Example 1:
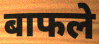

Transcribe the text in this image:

बाफले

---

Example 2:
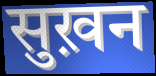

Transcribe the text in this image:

सुख़न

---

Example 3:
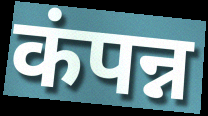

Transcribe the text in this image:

कंपन्न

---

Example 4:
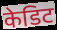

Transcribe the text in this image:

केडिट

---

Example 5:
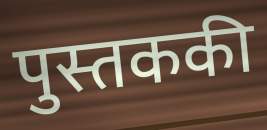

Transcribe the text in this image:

पुस्तककी